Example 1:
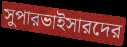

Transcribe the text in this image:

সুপারভাইসারদের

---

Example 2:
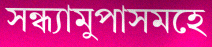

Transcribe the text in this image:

সন্ধ্যামুপাসমহে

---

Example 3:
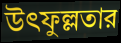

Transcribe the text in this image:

উৎফুল্লতার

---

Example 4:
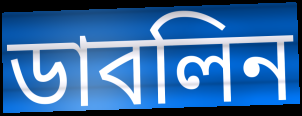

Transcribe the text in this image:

ডাবলিন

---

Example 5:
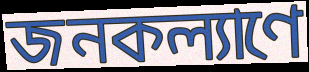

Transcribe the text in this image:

জনকল্যাণে